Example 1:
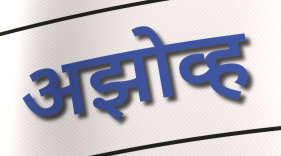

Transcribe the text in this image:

अझोव्ह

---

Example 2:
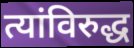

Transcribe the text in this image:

त्यांविरुद्ध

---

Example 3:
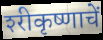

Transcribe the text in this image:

श्रीकृष्णाचें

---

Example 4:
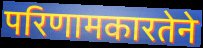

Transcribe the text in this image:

परिणामकारतेने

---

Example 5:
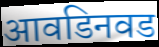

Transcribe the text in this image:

आवडिनवड